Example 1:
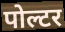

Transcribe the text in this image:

पोल्टर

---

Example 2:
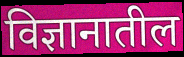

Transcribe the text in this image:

विज्ञानातील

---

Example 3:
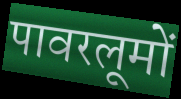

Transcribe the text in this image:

पावरलूमों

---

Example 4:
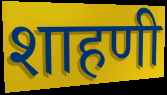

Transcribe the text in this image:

शाहणी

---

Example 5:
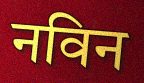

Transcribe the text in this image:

नविन